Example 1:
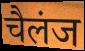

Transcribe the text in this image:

चैलंज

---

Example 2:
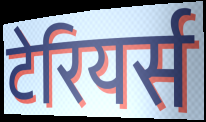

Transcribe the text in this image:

टेरियर्स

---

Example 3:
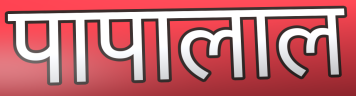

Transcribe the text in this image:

पापालाल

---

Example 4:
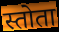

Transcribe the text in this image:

स्तोता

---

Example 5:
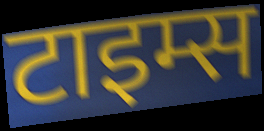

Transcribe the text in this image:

टाइम्‍स